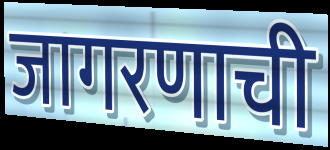
जागरणाची